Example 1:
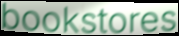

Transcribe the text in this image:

bookstores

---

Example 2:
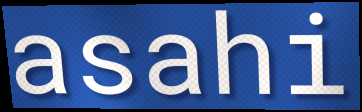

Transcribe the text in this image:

asahi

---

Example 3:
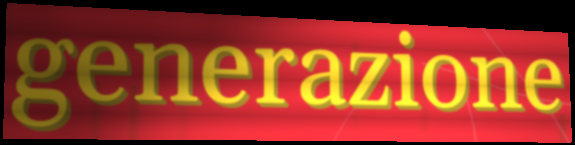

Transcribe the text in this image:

generazione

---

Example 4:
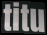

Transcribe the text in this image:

titu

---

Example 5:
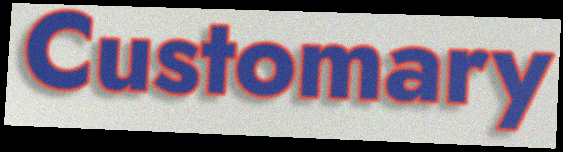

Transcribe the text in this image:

Customary